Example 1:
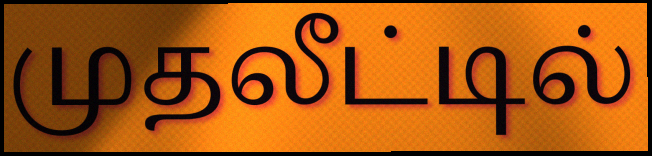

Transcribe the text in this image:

முதலீட்டில்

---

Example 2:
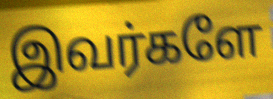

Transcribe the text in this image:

இவர்களே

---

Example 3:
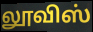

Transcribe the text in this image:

லூவிஸ்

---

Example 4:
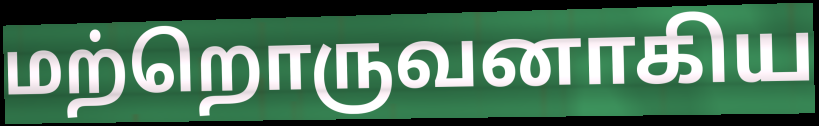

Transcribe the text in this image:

மற்றொருவனாகிய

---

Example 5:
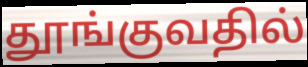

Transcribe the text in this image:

தூங்குவதில்